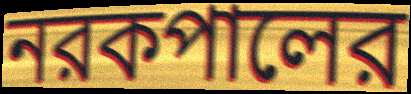
নরকপালের